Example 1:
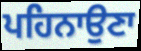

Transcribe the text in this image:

ਪਹਿਨਾਉਣਾ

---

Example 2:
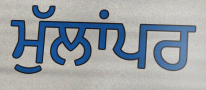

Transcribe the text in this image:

ਮੁੱਲਾਂਪਰ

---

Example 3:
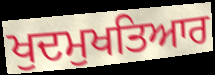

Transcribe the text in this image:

ਖੁਦਮੁਖਤਿਆਰ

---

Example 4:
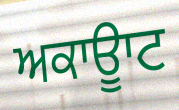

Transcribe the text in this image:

ਅਕਾਊਾਟ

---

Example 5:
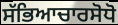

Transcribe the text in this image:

ਸੱਭਿਆਚਾਰਸੋਧੋ